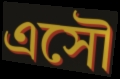
এসৌ